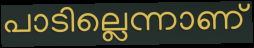
പാടില്ലെന്നാണ്